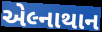
એલ્નાથાન